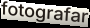
fotografar